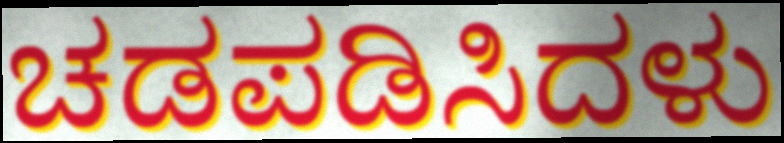
ಚಡಪಡಿಸಿದಳು